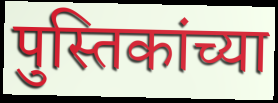
पुस्तिकांच्या